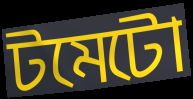
টমেটো